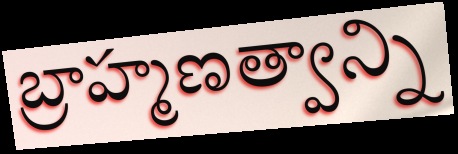
బ్రాహ్మణత్వాన్ని